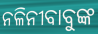
ନଳିନୀବାବୁଙ୍କ